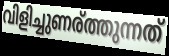
വിളിച്ചുണര്ത്തുന്നത്